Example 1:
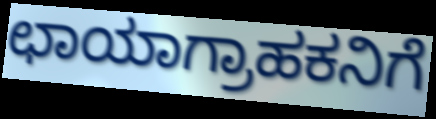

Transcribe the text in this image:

ಛಾಯಾಗ್ರಾಹಕನಿಗೆ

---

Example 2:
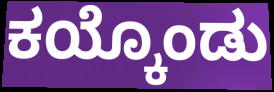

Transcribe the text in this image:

ಕಯ್ಕೊಂಡು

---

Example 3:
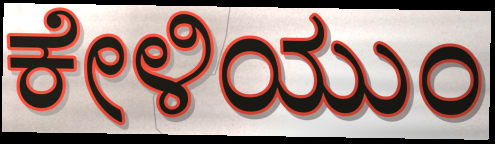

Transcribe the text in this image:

ಕೇಳಿಯುಂ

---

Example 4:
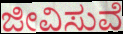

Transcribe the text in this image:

ಜೀವಿಸುವೆ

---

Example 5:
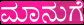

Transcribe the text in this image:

ಮಾನುಗೆ